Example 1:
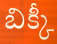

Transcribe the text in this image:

బిక్కీ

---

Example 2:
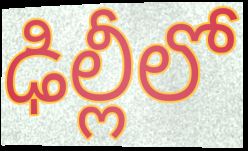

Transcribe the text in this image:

ఢిల్లీలో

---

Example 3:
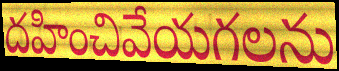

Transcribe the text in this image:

దహించివేయగలను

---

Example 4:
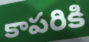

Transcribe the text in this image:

కాపరికి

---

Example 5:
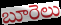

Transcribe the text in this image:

బూరెలు